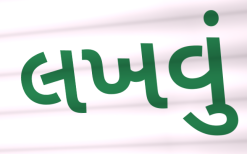
લખવું